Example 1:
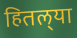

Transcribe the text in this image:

हितल्या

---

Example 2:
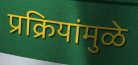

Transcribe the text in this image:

प्रक्रियांमुळे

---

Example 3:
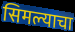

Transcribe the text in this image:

सिमल्याचा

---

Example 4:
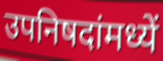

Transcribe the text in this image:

उपनिषदांमध्यें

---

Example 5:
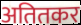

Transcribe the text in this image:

अतितकर